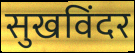
सुखविंदर